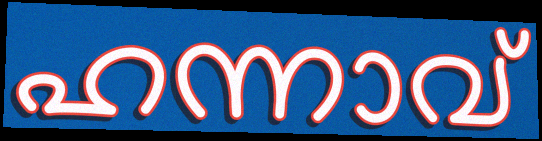
ഹന്നാവ്